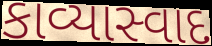
કાવ્યાસ્વાદ